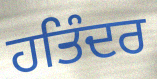
ਹਤਿੰਦਰ